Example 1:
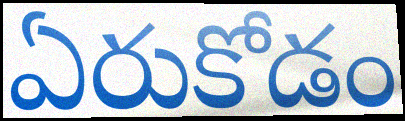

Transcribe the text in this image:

ఏరుకోడం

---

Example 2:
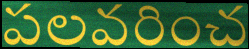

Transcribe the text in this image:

పలవరించ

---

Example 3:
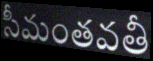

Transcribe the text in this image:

సీమంతవతీ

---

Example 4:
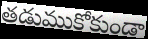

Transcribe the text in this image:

తడుముకోకుండా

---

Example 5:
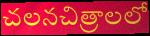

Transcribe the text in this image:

చలనచిత్రాలలో